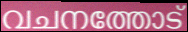
വചനത്തോട്